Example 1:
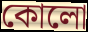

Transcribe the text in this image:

কোলো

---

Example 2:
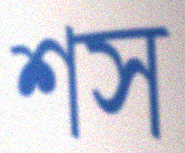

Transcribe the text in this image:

শস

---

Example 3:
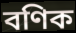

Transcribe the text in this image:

বণিক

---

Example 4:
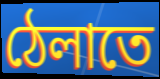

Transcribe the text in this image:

ঠেলাতে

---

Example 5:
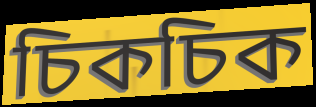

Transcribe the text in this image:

চিকচিক